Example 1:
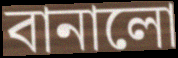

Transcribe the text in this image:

বানালো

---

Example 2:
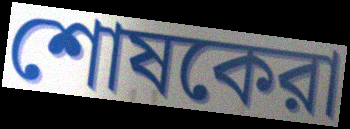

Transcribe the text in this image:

শোষকেরা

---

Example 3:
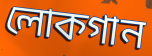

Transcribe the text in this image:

লোকগান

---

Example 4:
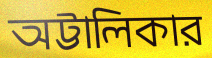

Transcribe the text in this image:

অট্টালিকার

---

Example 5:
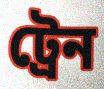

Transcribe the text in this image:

ট্রেন